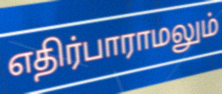
எதிர்பாராமலும்